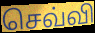
செவ்வி